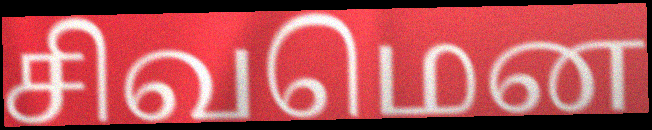
சிவமென